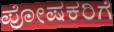
ಪೋಷಕರಿಗೆ